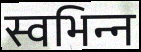
स्वभिन्न